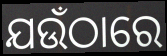
ଯଉଁଠାରେ